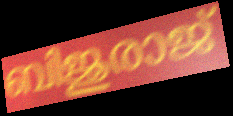
ബിജുരാജ്